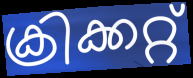
ക്രിക്കറ്റ്